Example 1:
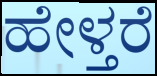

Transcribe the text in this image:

ಹೇಳ್ತರೆ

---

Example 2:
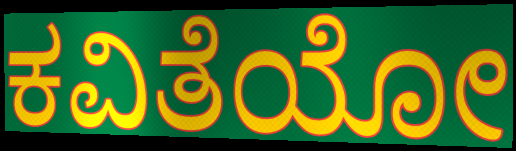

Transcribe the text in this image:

ಕವಿತೆಯೋ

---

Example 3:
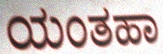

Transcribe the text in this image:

ಯಂತಹಾ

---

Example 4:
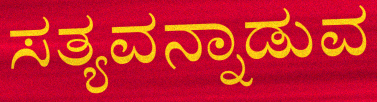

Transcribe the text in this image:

ಸತ್ಯವನ್ನಾಡುವ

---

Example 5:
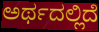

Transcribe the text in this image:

ಅರ್ಥದಲ್ಲಿದೆ